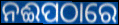
ନଈପଠାରେ